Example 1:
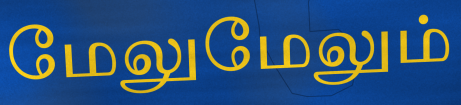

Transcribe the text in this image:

மேலுமேலும்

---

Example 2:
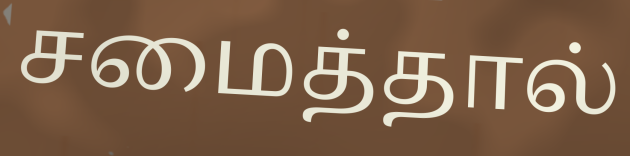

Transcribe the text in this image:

சமைத்தால்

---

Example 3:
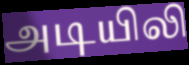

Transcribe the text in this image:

அடியிலி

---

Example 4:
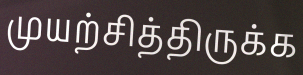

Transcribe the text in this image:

முயற்சித்திருக்க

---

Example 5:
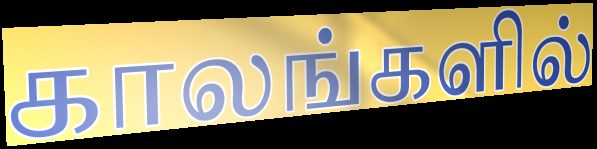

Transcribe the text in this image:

காலங்களில்